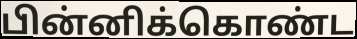
பின்னிக்கொண்ட